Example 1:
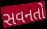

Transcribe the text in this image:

સવનતો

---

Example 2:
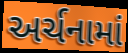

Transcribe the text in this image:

અર્ચનામાં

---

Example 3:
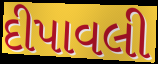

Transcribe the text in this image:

દીપાવલી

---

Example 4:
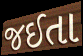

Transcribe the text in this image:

જઈતા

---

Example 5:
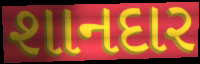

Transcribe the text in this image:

શાનદાર